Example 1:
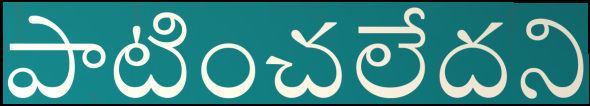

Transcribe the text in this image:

పాటించలేదని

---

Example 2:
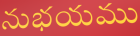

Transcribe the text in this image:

నుభయము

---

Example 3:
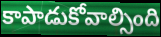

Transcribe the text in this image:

కాపాడుకోవాల్సింది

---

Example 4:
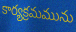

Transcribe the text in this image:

కార్యక్రమమును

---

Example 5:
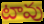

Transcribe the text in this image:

టావు